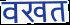
वखत